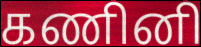
கணினி